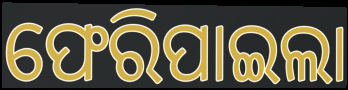
ଫେରିପାଇଲା